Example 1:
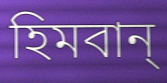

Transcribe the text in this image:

হিমবান্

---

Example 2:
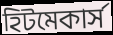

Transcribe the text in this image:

হিটমেকার্স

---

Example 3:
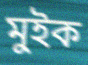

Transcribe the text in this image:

মুইক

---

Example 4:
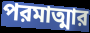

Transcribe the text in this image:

পরমাত্মার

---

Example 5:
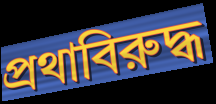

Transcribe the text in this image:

প্রথাবিরুদ্ধ